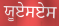
ਯੂਏਸਏਸ